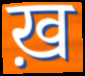
ख़